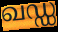
ഖഡ്ഡ